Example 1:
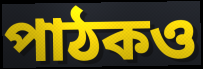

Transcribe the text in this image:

পাঠকও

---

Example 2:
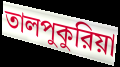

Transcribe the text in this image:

তালপুকুরিয়া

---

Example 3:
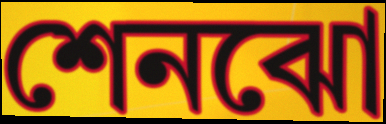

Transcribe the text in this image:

শেনঝো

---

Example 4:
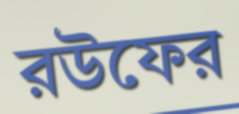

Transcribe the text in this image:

রউফের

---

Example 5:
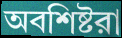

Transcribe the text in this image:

অবশিষ্টরা